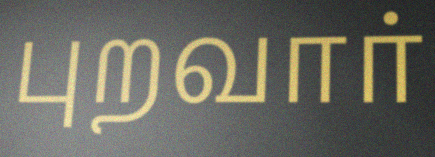
புறவார்